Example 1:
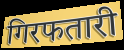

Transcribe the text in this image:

गिरफतारी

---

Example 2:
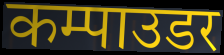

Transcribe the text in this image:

कम्पाउडर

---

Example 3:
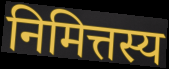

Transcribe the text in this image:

निमित्तस्य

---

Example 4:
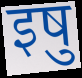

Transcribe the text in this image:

इषु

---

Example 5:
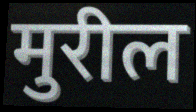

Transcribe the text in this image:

मुरील